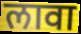
लावा